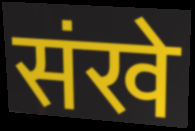
संखे